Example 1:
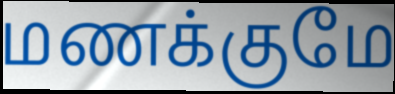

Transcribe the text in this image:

மணக்குமே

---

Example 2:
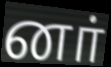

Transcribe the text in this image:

னர்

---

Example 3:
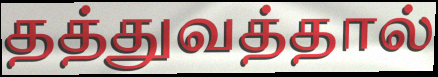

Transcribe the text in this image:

தத்துவத்தால்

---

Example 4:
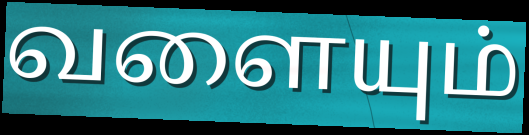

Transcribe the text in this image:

வளையும்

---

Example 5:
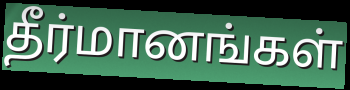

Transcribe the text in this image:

தீர்மானங்கள்